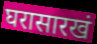
घरासारखं